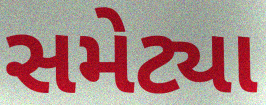
સમેટ્યા